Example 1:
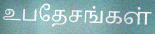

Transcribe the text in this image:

உபதேசங்கள்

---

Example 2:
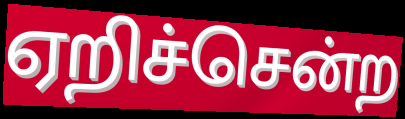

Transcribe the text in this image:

ஏறிச்சென்ற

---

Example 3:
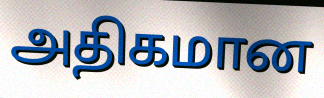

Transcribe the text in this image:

அதிகமான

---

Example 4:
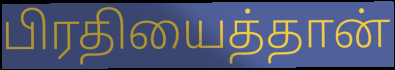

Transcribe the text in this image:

பிரதியைத்தான்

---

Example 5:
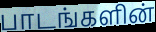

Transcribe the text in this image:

பாடங்களின்